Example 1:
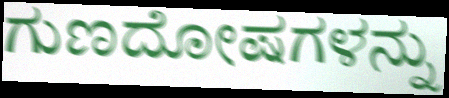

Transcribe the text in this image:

ಗುಣದೋಷಗಳನ್ನು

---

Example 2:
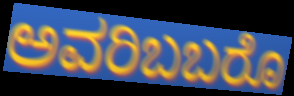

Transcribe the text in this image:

ಅವರಿಬಬರೊ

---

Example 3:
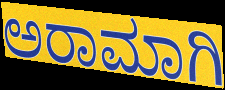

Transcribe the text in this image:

ಅರಾಮಾಗಿ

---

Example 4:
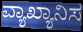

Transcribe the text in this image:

ವ್ಯಾಖ್ಯಾನಿಸ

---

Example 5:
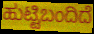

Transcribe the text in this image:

ಹುಟ್ಟಿಬಂದಿದೆ